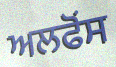
ਅਲਫੋਂਸ